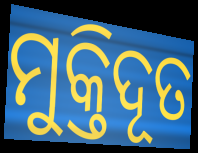
ମୁକ୍ତିଦୂତ